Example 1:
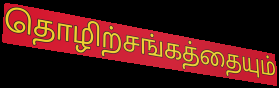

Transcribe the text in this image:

தொழிற்சங்கத்தையும்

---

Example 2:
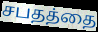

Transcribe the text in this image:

சபதத்தை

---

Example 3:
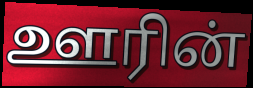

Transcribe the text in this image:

ஊரின்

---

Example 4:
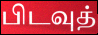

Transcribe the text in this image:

பிடவுத்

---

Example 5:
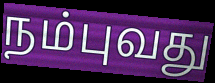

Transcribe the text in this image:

நம்புவது